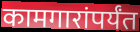
कामगारांपर्यंत